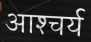
आश्‍चर्य